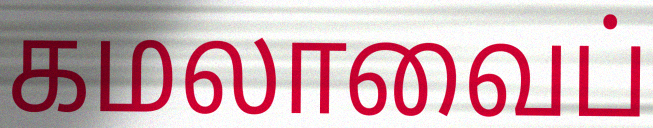
கமலாவைப்